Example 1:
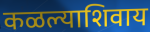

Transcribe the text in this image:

कळल्याशिवाय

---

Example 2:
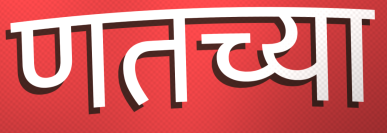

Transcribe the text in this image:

णतच्या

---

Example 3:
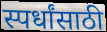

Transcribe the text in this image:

स्पर्धांसाठी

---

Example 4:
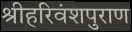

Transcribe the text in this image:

श्रीहरिवंशपुराण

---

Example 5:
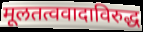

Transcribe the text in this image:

मूलतत्ववादाविरुद्ध